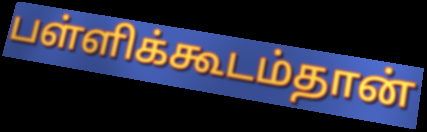
பள்ளிக்கூடம்தான்